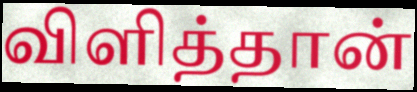
விளித்தான்